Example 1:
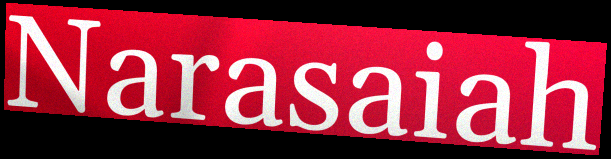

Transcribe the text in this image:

Narasaiah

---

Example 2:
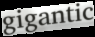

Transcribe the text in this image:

gigantic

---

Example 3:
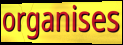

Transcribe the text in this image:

organises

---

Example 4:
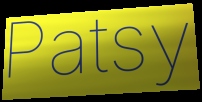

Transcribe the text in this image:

Patsy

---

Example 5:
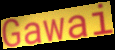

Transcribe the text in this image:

Gawai